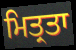
ਮਿਤ੍ਰਤਾ